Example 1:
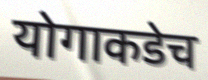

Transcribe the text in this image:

योगाकडेच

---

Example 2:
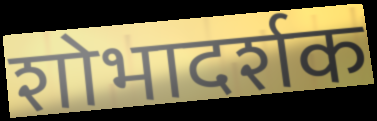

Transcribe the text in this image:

शोभादर्शक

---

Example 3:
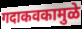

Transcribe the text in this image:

गदाकवकामुळे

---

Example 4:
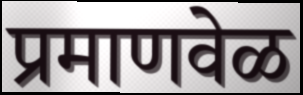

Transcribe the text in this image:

प्रमाणवेळ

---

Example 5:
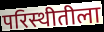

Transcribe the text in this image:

परिस्थीतीला